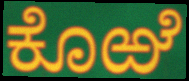
ಕೊಱೆ